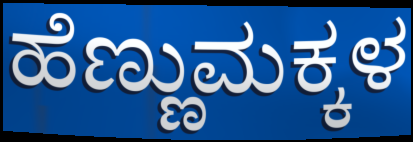
ಹೆಣ್ಣುಮಕ್ಕಳ